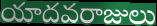
యాదవరాజులు